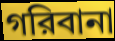
গরিবানা